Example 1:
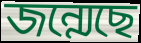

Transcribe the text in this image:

জন্মেছে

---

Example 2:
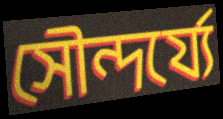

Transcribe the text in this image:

সৌন্দর্য্যে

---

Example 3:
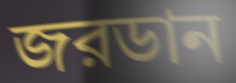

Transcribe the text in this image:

জরডান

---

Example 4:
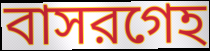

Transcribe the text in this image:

বাসরগেহ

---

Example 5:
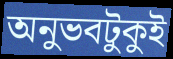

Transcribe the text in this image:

অনুভবটুকুই